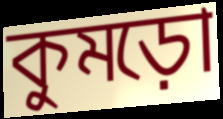
কুমড়ো